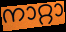
നാറ്റാ